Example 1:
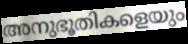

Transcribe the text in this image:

അനുഭൂതികളെയും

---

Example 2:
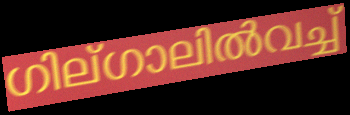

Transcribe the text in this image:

ഗില്ഗാലിൽവച്ച്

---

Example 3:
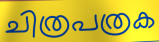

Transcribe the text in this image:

ചിത്രപത്രക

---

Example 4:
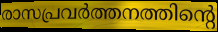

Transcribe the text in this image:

രാസപ്രവർത്തനത്തിന്റെ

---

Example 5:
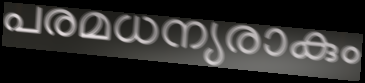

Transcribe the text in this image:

പരമധന്യരാകും